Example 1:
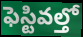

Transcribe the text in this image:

ఫెస్టివల్తో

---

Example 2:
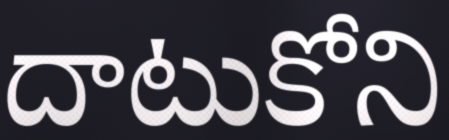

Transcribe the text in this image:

దాటుకోని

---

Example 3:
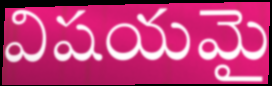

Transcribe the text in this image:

విషయమై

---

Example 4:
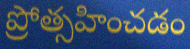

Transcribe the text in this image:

ప్రోత్సహించడం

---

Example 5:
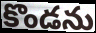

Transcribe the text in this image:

కొండను